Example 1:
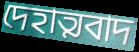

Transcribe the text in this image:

দেহাত্মবাদ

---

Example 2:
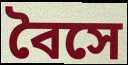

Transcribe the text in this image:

বৈসে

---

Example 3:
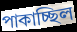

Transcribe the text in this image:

পাকাচ্ছিল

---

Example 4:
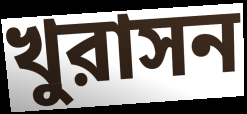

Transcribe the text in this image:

খুরাসন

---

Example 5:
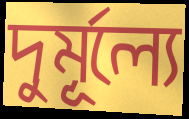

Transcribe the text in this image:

দুর্মূল্যে